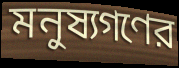
মনুষ্যগণের